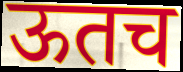
ऊतच